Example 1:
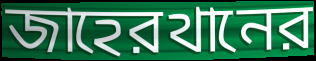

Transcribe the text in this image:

জাহেরথানের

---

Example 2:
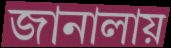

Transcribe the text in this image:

জানালায়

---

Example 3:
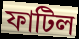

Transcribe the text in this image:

ফাটিল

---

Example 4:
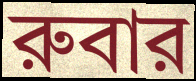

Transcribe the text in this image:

রুবার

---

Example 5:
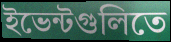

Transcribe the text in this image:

ইভেন্টগুলিতে